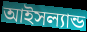
আইসল্যান্ড